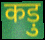
कड़ु